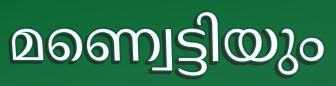
മണ്വെട്ടിയും